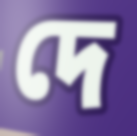
দে